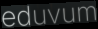
eduvum